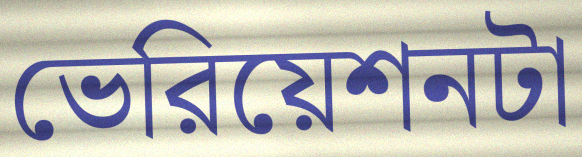
ভেরিয়েশনটা